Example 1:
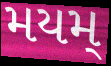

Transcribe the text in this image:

મયમ્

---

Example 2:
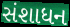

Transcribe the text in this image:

સંશાધન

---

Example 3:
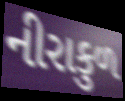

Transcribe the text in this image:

નીરાકુળ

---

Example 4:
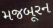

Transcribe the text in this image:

મજબૂરન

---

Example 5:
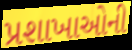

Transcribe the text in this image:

પ્રશાખાઓની